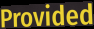
Provided